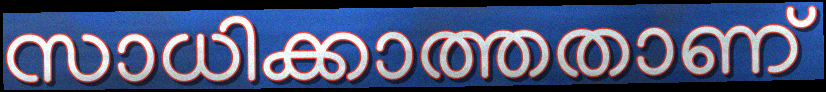
സാധിക്കാത്തതാണ്